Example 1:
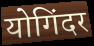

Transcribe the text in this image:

योगिंदर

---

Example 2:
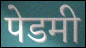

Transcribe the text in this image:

पेडमी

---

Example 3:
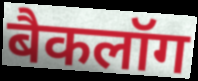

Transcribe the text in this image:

बैकलॉग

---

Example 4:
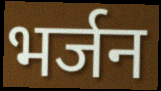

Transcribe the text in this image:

भर्जन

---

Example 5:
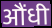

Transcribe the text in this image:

औंधी